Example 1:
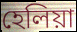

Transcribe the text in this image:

হেলিয়া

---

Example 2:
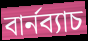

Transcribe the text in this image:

বার্নব্যাচ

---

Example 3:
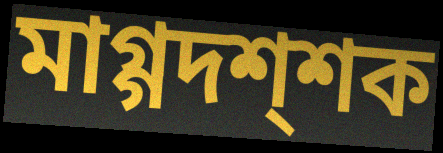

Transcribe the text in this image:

মাগ্গদশ্শক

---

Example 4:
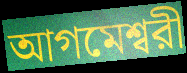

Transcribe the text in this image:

আগমেশ্বরী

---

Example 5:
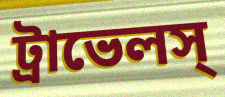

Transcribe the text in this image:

ট্রাভেলস্